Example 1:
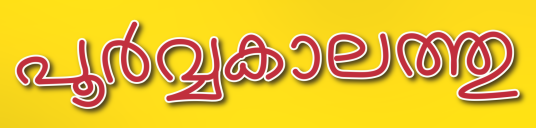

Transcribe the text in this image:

പൂർവ്വകാലത്തു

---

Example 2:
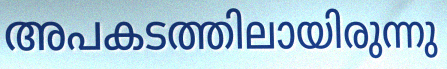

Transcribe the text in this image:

അപകടത്തിലായിരുന്നു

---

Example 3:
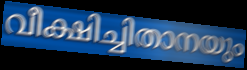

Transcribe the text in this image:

വീക്ഷിച്ചിതാനയും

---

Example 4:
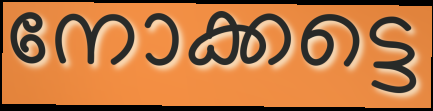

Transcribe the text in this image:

നോക്കട്ടെ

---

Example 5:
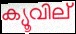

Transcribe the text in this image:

ക്യൂവില്